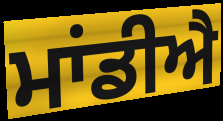
ਮਾਂਡੀਐ